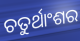
ଚତୁର୍ଥାଂଶର